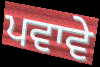
ਪਵਾਵੇ